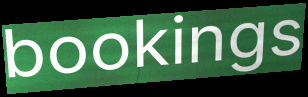
bookings